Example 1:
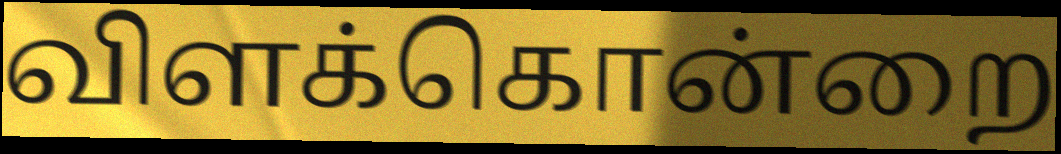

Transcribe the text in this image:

விளக்கொன்றை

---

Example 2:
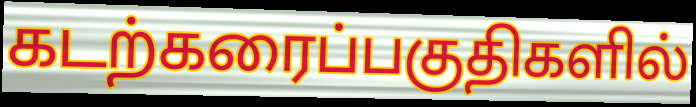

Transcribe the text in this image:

கடற்கரைப்பகுதிகளில்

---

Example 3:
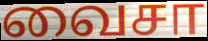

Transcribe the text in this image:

வைசா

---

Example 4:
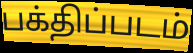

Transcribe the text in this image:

பக்திப்படம்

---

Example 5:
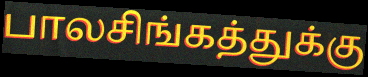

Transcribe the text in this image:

பாலசிங்கத்துக்கு